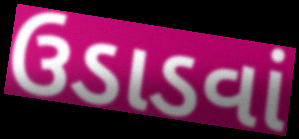
ઉડાડવાં